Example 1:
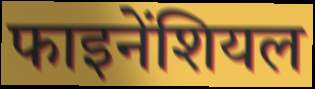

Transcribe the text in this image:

फाइनेंशियल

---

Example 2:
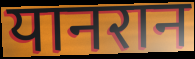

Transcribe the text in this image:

यानरान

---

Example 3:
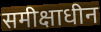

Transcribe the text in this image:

समीक्षाधीन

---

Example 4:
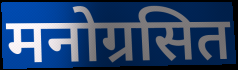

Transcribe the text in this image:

मनोग्रसित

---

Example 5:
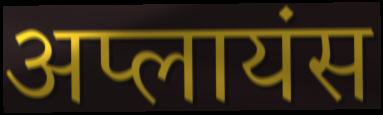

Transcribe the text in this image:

अप्‍लायंस